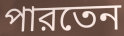
পারতেন